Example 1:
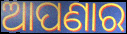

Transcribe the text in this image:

ଆପଣାର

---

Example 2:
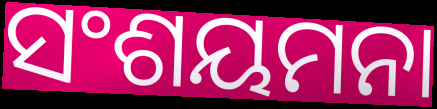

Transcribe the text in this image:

ସଂଶୟମନା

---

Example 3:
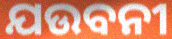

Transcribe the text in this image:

ଯଉବନୀ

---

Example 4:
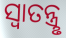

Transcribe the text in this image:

ସ୍ବାତନ୍ତ୍ରୢ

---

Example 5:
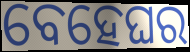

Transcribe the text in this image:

ବେହେଘର